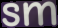
sm